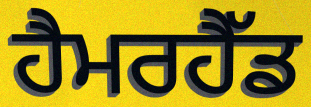
ਹੈਮਰਹੈੱਡ